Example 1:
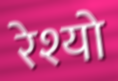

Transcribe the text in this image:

रेश्यो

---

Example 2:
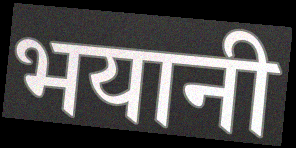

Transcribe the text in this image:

भयानी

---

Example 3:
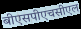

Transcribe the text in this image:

बीएसपीएचसीएल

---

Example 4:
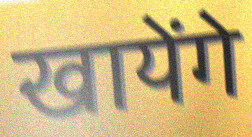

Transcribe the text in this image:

खायेंगे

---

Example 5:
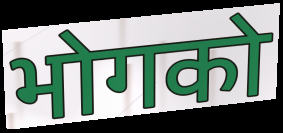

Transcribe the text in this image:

भोगको